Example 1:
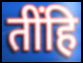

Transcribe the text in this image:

तींहि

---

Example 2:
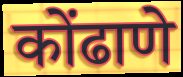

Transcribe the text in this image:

कोंढाणे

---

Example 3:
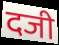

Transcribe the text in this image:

दजी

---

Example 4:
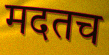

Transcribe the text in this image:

मदतच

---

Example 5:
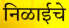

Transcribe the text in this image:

निळाईचे